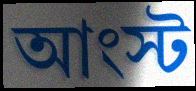
আংস্ট